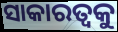
ସାକାରତ୍ଵକୁ